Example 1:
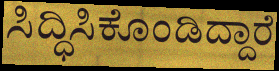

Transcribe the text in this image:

ಸಿದ್ಧಿಸಿಕೊಂಡಿದ್ದಾರೆ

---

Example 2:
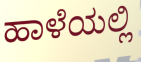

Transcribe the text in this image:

ಹಾಳೆಯಲ್ಲಿ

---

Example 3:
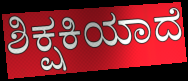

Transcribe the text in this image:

ಶಿಕ್ಷಕಿಯಾದೆ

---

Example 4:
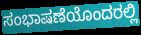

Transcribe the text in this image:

ಸಂಭಾಷಣೆಯೊಂದರಲ್ಲಿ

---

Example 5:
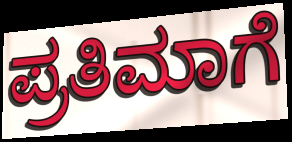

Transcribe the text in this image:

ಪ್ರತಿಮಾಗೆ